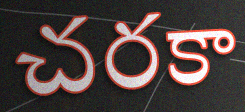
చరకా